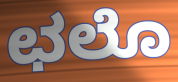
ಛಲೊ